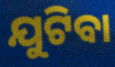
ଯୁଟିବା